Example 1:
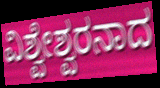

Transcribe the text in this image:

ವಿಶ್ವೇಶ್ವರನಾದ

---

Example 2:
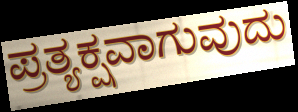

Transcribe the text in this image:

ಪ್ರತ್ಯಕ್ಷವಾಗುವುದು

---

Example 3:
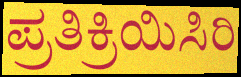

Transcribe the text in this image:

ಪ್ರತಿಕ್ರಿಯಿಸಿರಿ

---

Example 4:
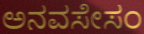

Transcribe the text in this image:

ಅನವಸೇಸಂ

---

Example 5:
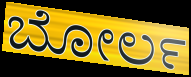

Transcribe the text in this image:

ಬೋರ್ಲ